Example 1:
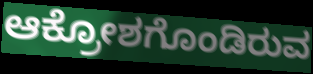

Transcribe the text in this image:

ಆಕ್ರೋಶಗೊಂಡಿರುವ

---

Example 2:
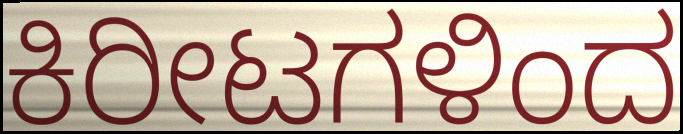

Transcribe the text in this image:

ಕಿರೀಟಗಳಿಂದ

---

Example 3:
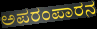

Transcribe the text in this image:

ಅಪರಂಪಾರನ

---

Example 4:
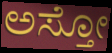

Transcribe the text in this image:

ಅಸ್ತೋ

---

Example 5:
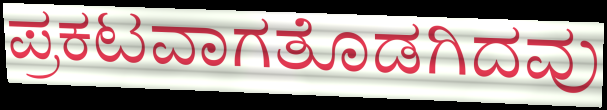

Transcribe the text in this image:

ಪ್ರಕಟವಾಗತೊಡಗಿದವು